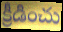
క్రీడించు